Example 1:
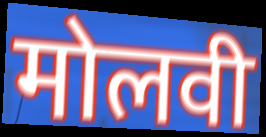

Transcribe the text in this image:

मोलवी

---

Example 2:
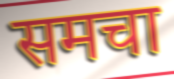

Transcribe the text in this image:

समचा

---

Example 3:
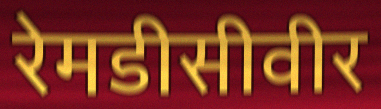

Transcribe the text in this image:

रेमडीसीवीर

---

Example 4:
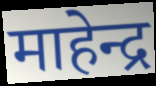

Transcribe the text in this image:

माहेन्द्र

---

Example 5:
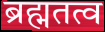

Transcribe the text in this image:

ब्रह्मतत्व